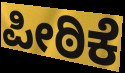
ಪೀಠಿಕೆ